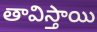
తావిస్తాయి